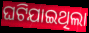
ଘଟିଯାଇଥିଲା